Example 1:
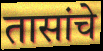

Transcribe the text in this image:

तासांचे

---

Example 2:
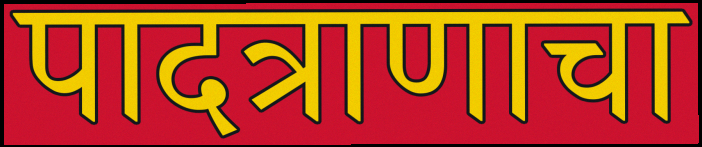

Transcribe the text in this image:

पादत्राणाचा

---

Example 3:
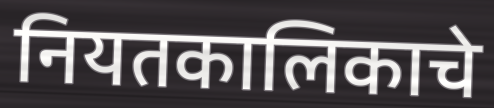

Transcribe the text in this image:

नियतकालिकाचे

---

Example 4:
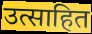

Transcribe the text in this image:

उत्साहित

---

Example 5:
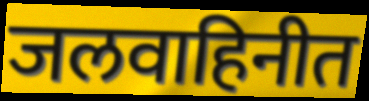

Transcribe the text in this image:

जलवाहिनीत